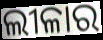
ଲୀଳାର